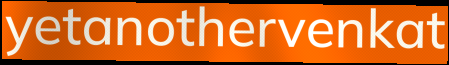
yetanothervenkat